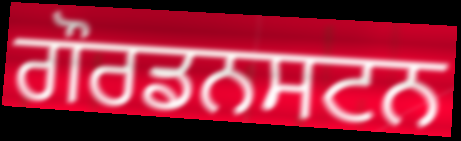
ਗੌਰਡਨਸਟਨ